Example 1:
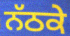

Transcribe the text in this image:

ਨੱਠਕੇ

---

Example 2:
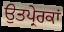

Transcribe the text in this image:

ਉਤਪ੍ਰੇਰਕਾਂ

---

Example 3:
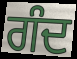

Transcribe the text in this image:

ਗੰਦ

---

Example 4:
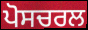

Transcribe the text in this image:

ਪੋਸਚਰਲ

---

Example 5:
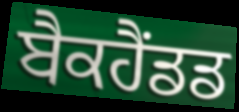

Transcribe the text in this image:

ਬੈਕਹੈਂਡਡ